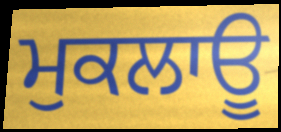
ਮੁਕਲਾਊ